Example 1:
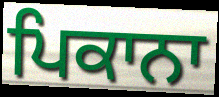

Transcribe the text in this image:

ਪਿਕਾਨਾ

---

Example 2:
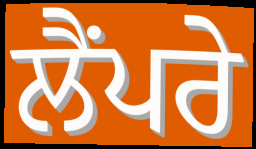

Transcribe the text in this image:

ਲੈਂਪਰੇ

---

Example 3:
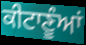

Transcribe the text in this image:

ਕੀਟਾਣੂੰਆਂ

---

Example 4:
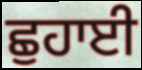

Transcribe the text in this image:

ਛੁਹਾਈ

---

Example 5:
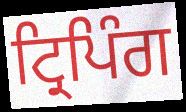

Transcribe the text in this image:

ਟ੍ਰਿਪਿੰਗ